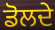
ਡੋਲਦੇ